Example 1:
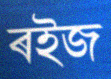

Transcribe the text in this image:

ৰইজ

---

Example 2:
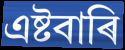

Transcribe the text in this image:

এষ্টবাৰি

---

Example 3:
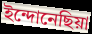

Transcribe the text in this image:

ইন্দোনেছিয়া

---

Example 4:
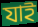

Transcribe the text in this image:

যাই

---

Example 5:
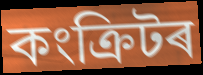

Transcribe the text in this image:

কংক্ৰিটৰ